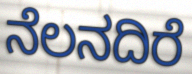
ನೆಲನದಿರೆ